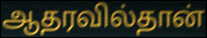
ஆதரவில்தான்